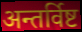
अन्तर्विष्ट